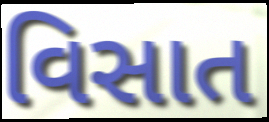
વિસાત